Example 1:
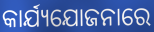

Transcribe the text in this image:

କାର୍ଯ୍ୟଯୋଜନାରେ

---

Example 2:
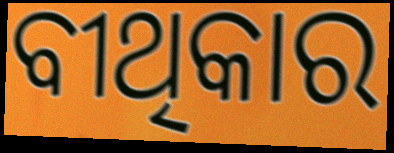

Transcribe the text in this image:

ବୀଥିକାର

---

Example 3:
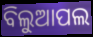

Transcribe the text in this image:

ବିଲୁଆପଲ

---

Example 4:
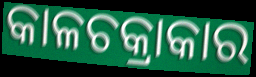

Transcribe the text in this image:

କାଳଚକ୍ରାକାର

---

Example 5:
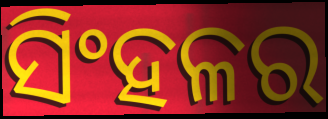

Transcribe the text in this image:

ସିଂହଳର